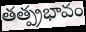
తత్ప్రభావం